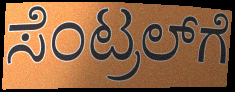
ಸೆಂಟ್ರಲ್‌ಗೆ